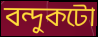
বন্দুকটো